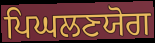
ਪਿਘਲਣਯੋਗ